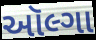
ઑલ્ગા